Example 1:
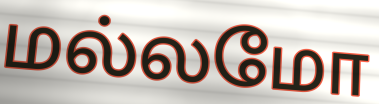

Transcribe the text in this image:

மல்லமோ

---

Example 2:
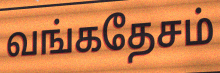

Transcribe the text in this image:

வங்கதேசம்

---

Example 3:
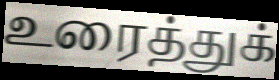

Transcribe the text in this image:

உரைத்துக்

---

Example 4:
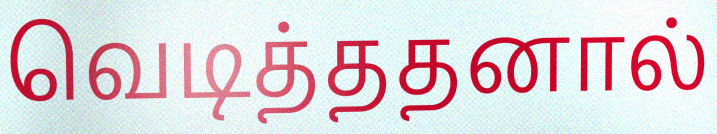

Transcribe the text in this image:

வெடித்ததனால்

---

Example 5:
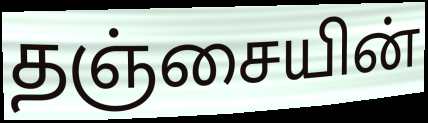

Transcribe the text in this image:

தஞ்சையின்